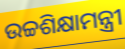
ଉଚ୍ଚଶିକ୍ଷାମନ୍ତ୍ରୀ